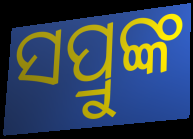
ସପ୍ରୁଙ୍କ